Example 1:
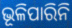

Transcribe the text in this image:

ଭୂଳିପାରିନି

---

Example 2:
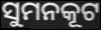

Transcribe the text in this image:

ସୁମନକୂଟ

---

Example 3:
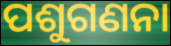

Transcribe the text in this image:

ପଶୁଗଣନା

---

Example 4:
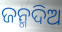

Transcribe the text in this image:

ଜନ୍ମଦିଅ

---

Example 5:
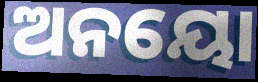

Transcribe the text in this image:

ଅନୟୋ